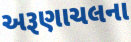
અરૂણાચલના